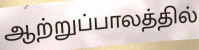
ஆற்றுப்பாலத்தில்